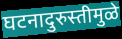
घटनादुरुस्तीमुळे